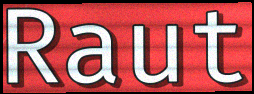
Raut